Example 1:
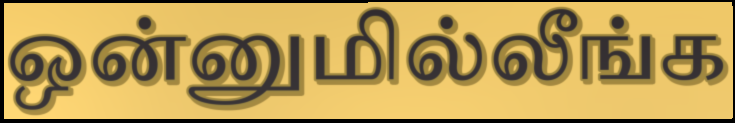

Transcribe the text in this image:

ஒன்னுமில்லீங்க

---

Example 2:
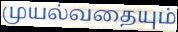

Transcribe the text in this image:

முயல்வதையும்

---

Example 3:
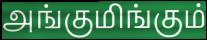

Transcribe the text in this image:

அங்குமிங்கும்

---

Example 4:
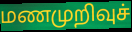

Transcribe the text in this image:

மணமுறிவுச்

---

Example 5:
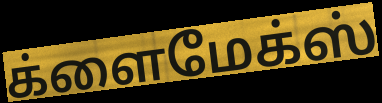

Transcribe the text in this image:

க்ளைமேக்ஸ்